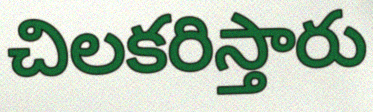
చిలకరిస్తారు